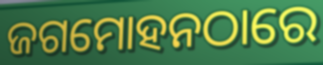
ଜଗମୋହନଠାରେ